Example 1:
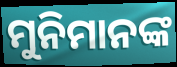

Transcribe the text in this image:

ମୁନିମାନଙ୍କ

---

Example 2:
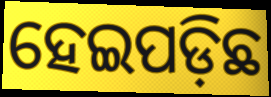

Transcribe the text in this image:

ହେଇପଡ଼ିଛ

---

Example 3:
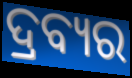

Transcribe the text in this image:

ଦ୍ରବ୍ୟର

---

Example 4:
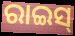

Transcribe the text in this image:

ରାଇସ୍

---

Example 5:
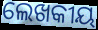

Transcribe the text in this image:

ଲେଖକୀୟ